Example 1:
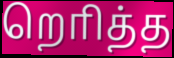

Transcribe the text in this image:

றெரித்த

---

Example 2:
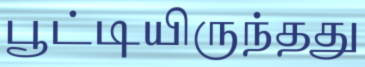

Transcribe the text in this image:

பூட்டியிருந்தது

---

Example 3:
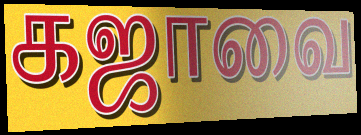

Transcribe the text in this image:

கஜாவை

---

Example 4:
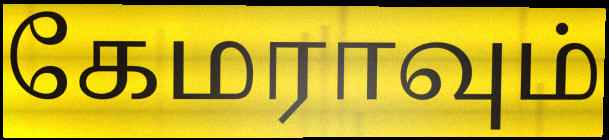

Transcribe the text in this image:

கேமராவும்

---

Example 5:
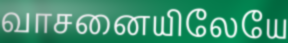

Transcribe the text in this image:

வாசனையிலேயே